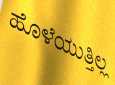
ಹೊಳೆಯುತ್ತಿಲ್ಲ